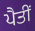
ਪੈਤੀਂ